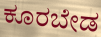
ಕೂರಬೇಡ